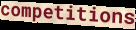
competitions